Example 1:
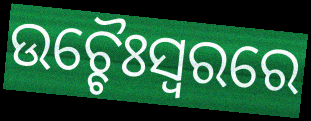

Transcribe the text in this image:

ଉଚ୍ଚୈଃସ୍ୱରରେ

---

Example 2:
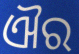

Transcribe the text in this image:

ଐର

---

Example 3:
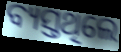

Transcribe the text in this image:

ବ୍ୟସ୍ତଥିଲେ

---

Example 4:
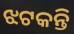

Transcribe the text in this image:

ଝଟକନ୍ତି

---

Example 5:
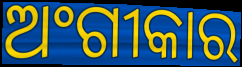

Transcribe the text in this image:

ଅଂଗୀକାର